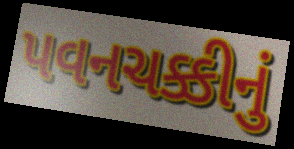
પવનચક્કીનું